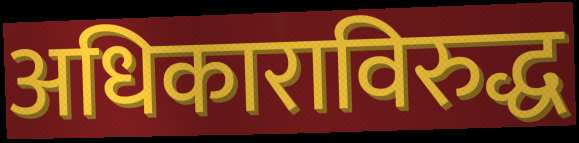
अधिकाराविरुद्ध